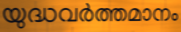
യുദ്ധവർത്തമാനം